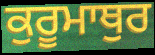
ਕੁਰੂਮਾਥੁਰ